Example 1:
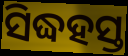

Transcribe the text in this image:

ସିଦ୍ଧହସ୍ତ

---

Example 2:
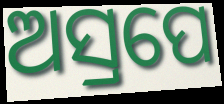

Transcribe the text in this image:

ଅସ୍ରପେ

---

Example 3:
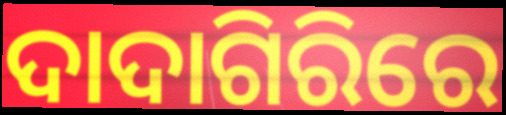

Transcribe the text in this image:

ଦାଦାଗିରିରେ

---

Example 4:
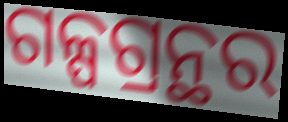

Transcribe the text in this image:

ଗଳ୍ପଗ୍ରନ୍ଥର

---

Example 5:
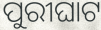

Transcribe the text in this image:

ପୁରୀଘାଟ